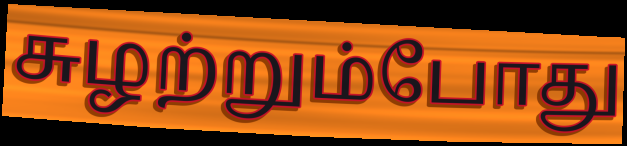
சுழற்றும்போது